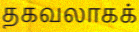
தகவலாகக்